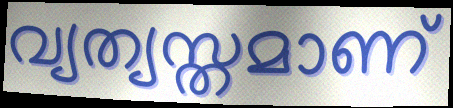
വ്യത്യസ്തമാണ്